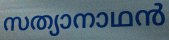
സത്യാനാഥൻ